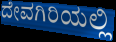
ದೇವಗಿರಿಯಲ್ಲಿ